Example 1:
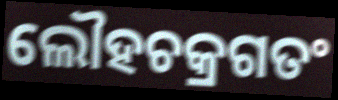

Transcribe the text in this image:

ଲୌହଚକ୍ରଗତଂ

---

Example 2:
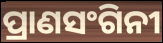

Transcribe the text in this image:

ପ୍ରାଣସଂଗିନୀ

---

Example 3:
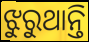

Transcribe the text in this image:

ଝୁରୁଥାନ୍ତି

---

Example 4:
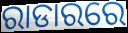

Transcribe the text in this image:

ରାଡାରରେ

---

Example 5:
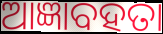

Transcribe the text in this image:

ଆଜ୍ଞାବହତା